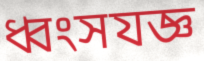
ধ্বংসযজ্ঞ